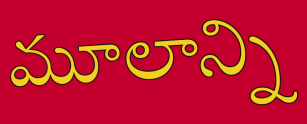
మూలాన్ని